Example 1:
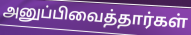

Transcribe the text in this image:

அனுப்பிவைத்தார்கள்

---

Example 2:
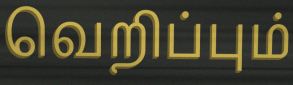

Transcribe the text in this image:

வெறிப்பும்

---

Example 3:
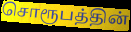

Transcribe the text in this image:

சொரூபத்தின்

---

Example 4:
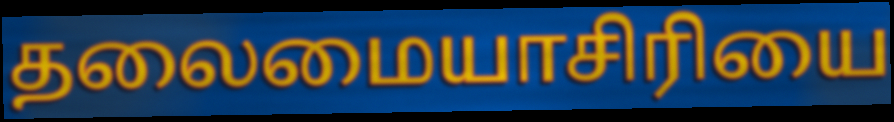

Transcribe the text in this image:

தலைமையாசிரியை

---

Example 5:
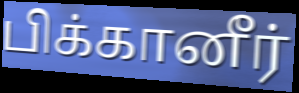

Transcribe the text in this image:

பிக்கானீர்